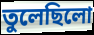
তুলেছিলো